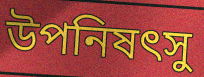
উপনিষৎসু